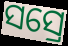
ସସ୍ରେ